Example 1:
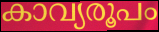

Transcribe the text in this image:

കാവ്യരൂപം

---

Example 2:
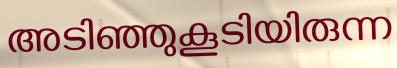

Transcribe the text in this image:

അടിഞ്ഞുകൂടിയിരുന്ന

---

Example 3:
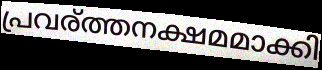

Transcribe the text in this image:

പ്രവര്ത്തനക്ഷമമാക്കി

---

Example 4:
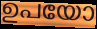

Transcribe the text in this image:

ഉപയോ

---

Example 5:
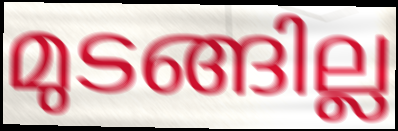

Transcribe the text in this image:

മുടങ്ങില്ല